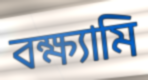
বক্ষ্যামি